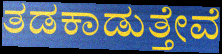
ತಡಕಾಡುತ್ತೇವೆ